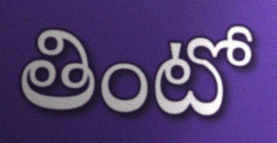
తింటో